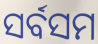
ସର୍ବସମ